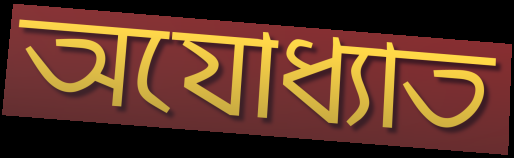
অযোধ্যাত